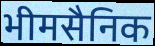
भीमसैनिक